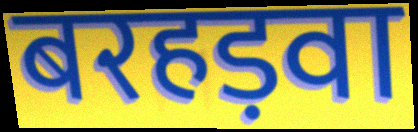
बरहड़वा